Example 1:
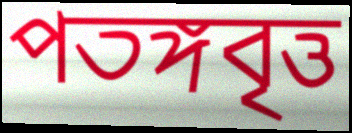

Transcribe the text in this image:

পতঙ্গবৃত্ত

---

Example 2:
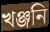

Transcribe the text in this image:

খঞ্জনি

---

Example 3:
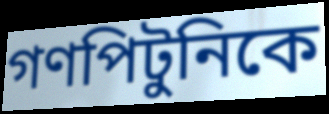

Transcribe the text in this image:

গণপিটুনিকে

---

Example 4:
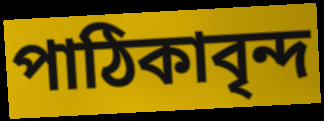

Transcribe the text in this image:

পাঠিকাবৃন্দ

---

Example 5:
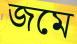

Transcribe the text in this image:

জমে